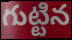
గుట్టిన